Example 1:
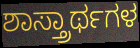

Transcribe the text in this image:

ಶಾಸ್ತ್ರಾರ್ಥಗಳ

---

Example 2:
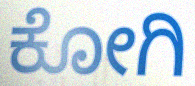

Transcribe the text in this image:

ಕೋಗಿ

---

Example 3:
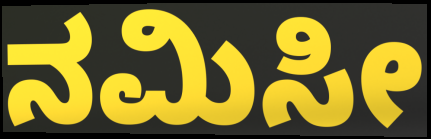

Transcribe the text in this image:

ನಮಿಸೀ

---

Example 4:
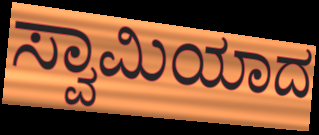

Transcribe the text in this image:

ಸ್ವಾಮಿಯಾದ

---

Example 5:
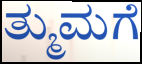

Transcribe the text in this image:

ತ್ಮುಮಗೆ